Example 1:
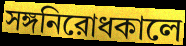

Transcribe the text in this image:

সঙ্গনিরোধকালে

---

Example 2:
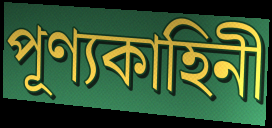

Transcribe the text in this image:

পূণ্যকাহিনী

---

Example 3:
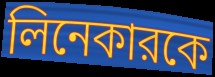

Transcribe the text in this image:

লিনেকারকে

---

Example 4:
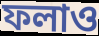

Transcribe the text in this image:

ফলাও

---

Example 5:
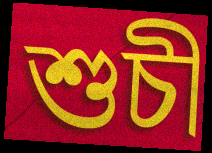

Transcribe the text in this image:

শুচী